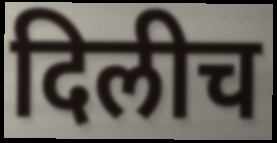
दिलीच